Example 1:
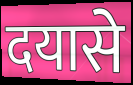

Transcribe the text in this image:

दयासे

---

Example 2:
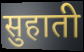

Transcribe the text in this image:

सुहाती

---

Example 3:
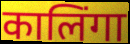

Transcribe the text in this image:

कालिंगा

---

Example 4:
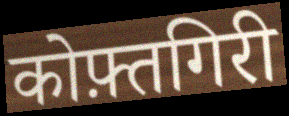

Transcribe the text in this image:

कोफ़्तगिरी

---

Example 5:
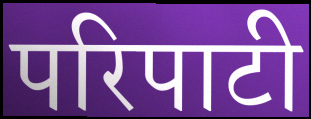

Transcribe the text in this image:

परिपाटी